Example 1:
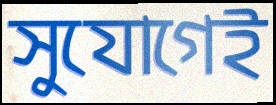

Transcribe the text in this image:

সুযোগেই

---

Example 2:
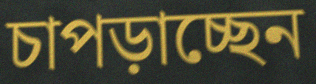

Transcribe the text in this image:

চাপড়াচ্ছেন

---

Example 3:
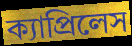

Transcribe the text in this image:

ক্যাপ্রিলেস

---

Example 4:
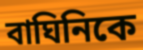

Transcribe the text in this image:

বাঘিনিকে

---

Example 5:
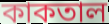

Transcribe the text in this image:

কাকতাল